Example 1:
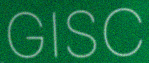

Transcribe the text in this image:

GISC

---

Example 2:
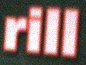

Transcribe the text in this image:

rill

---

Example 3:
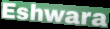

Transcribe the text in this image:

Eshwara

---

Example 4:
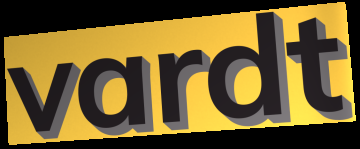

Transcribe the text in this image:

vardt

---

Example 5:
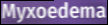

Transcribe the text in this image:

Myxoedema